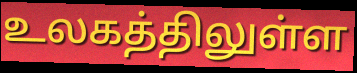
உலகத்திலுள்ள